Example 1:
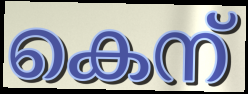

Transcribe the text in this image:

കെന്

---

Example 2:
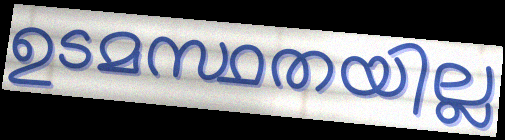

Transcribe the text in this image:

ഉടമസ്ഥതയില്ല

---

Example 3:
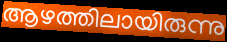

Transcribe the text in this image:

ആഴത്തിലായിരുന്നു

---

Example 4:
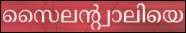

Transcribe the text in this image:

സൈലന്റ്വാലിയെ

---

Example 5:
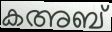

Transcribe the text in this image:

കഅബ്